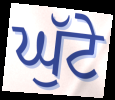
ਘੁੱਟੇ